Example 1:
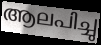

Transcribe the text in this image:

ആലപിച്ചു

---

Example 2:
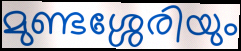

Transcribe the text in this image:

മുണ്ടശ്ശേരിയും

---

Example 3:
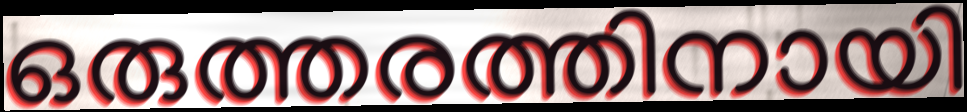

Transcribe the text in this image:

ഒരുത്തരത്തിനായി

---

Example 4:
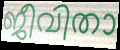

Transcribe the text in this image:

ജീവിതാ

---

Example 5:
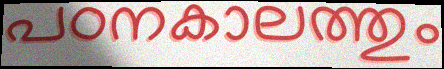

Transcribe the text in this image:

പഠനകാലത്തും